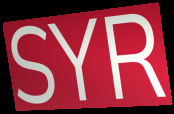
SYR